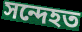
সন্দেহত